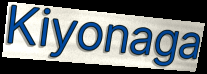
Kiyonaga